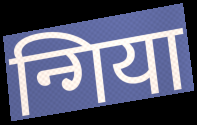
न्गिया